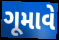
ગૂમાવે